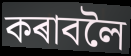
কৰাবলৈ